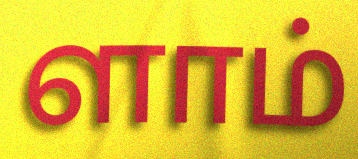
ளாம்